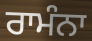
ਰਾਮੰਨਾ